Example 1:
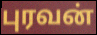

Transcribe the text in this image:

புரவன்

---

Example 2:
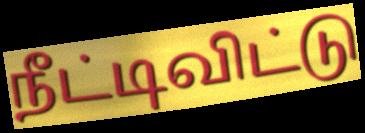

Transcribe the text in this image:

நீட்டிவிட்டு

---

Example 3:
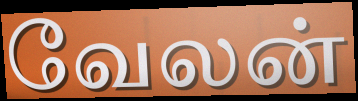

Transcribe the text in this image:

வேலன்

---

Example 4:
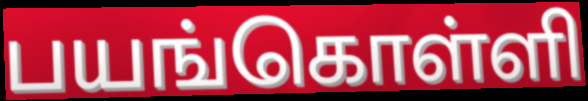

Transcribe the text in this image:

பயங்கொள்ளி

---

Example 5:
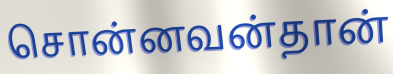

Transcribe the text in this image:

சொன்னவன்தான்